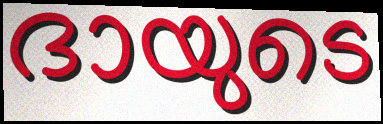
ദായുടെ